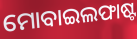
ମୋବାଇଲଫାଷ୍ଟ